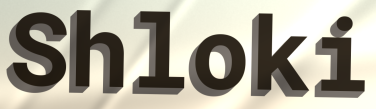
Shloki